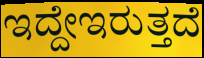
ಇದ್ದೇಇರುತ್ತದೆ